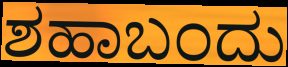
ಶಹಾಬಂದು